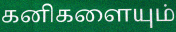
கனிகளையும்